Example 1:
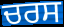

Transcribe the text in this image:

ਚਰਸ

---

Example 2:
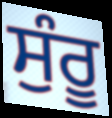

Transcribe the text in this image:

ਸੁੰਰੂ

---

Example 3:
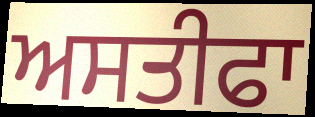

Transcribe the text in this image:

ਅਸਤੀਫਾ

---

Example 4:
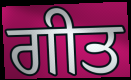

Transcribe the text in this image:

ਗੀਤ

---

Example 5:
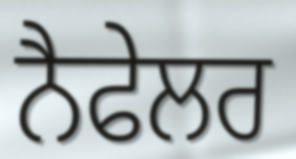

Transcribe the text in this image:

ਨੈਫੇਲਰ